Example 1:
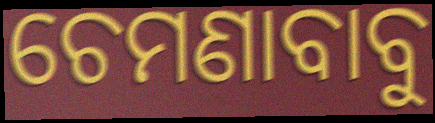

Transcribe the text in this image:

ଚେମଣାବାବୁ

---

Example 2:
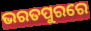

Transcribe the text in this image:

ଭରତପୁରରେ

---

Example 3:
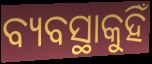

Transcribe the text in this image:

ବ୍ୟବସ୍ଥାକୁହିଁ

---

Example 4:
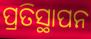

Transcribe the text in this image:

ପ୍ରତିସ୍ଥାପନ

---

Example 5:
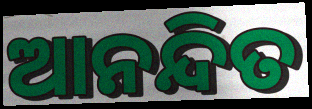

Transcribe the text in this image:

ଆନନ୍ଦିତ